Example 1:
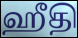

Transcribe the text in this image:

ஹீதி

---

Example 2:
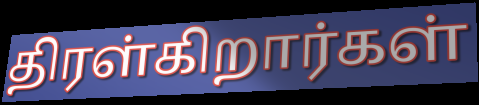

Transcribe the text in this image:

திரள்கிறார்கள்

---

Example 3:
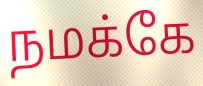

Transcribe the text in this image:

நமக்கே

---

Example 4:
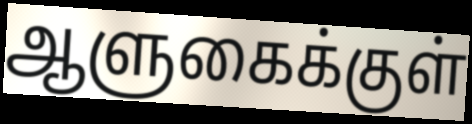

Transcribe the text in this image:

ஆளுகைக்குள்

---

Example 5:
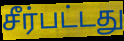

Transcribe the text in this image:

சீர்பட்டது